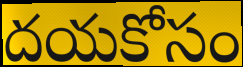
దయకోసం